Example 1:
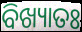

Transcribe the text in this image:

ବିଖ୍ୟାତଃ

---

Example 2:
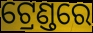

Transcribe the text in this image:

ଟ୍ରେଣ୍ଡରେ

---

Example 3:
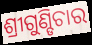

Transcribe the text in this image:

ଶ୍ରୀଗୁଣ୍ଡିଚାର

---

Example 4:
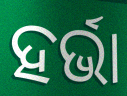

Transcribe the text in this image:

ହର୍ଭା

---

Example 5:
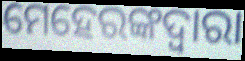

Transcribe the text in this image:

ମେହେରଙ୍କଦ୍ଵାରା